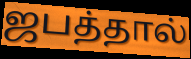
ஜபத்தால்